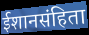
ईशानसंहिता